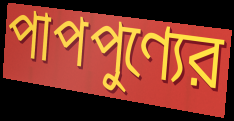
পাপপুণ্যের